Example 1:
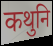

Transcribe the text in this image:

कथुनि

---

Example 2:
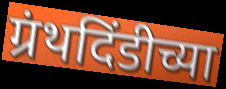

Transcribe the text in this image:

ग्रंथदिंडीच्या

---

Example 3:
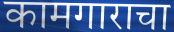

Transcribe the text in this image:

कामगाराचा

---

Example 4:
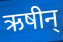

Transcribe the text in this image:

ऋषीन्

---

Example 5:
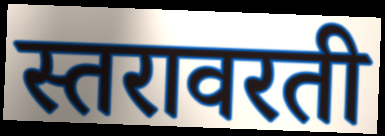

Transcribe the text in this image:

स्तरावरती